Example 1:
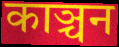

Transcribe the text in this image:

काञ्चन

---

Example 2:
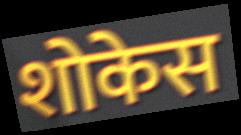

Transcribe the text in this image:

शोकेस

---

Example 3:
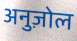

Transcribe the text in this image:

अनुज़ोल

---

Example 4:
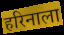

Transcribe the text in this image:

हरिनाला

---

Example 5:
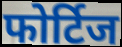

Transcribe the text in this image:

फोर्टिज